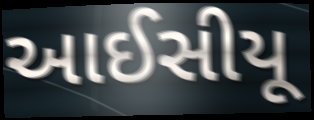
આઈસીયૂ